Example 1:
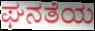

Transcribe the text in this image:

ಘನತೆಯ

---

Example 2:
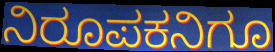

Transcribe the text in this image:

ನಿರೂಪಕನಿಗೂ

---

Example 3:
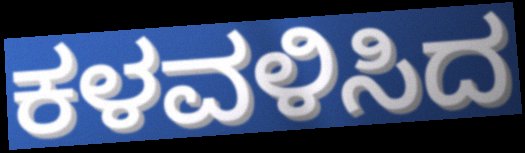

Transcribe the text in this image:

ಕಳವಳಿಸಿದ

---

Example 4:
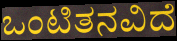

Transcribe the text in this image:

ಒಂಟಿತನವಿದೆ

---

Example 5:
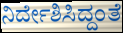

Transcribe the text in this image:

ನಿರ್ದೇಶಿಸಿದ್ದಂತೆ